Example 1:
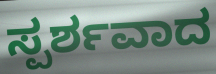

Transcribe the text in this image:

ಸ್ಪರ್ಶವಾದ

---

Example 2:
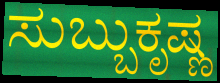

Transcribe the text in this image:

ಸುಬ್ಬುಕೃಷ್ಣ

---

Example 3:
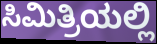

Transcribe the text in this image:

ಸಿಮಿತ್ರಿಯಲ್ಲಿ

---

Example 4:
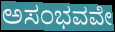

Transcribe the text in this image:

ಅಸಂಭವವೇ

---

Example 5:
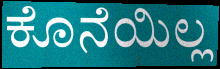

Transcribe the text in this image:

ಕೊನೆಯಿಲ್ಲ